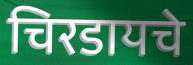
चिरडायचे